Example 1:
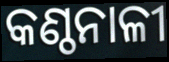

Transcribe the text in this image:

କଣ୍ଠନାଳୀ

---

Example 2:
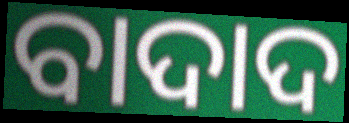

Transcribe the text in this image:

ବାଦାଦ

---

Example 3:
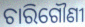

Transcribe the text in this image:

ଚାରିଗୌଣୀ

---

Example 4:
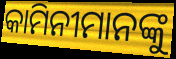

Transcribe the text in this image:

କାମିନୀମାନଙ୍କୁ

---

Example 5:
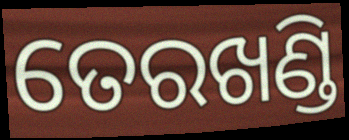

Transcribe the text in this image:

ତେରଖଣ୍ଡି